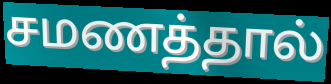
சமணத்தால்